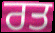
ਰਤ